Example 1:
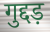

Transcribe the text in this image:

गुद्दड़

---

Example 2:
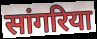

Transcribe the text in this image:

सांगरिया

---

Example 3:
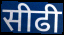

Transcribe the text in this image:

सीढी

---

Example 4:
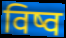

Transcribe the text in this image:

विष्व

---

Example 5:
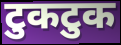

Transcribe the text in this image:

टुकटुक